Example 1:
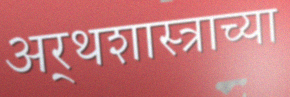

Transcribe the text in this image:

अर्थशास्त्राच्या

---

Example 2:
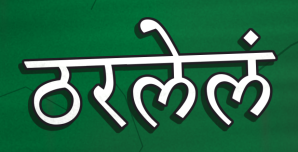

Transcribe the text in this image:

ठरलेलं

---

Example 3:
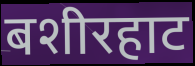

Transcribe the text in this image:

बशीरहाट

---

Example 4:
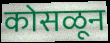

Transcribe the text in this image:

कोसळून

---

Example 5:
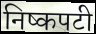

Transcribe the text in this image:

निष्कपटी